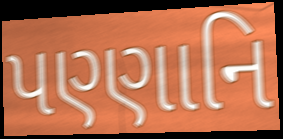
પણ્ણાનિ